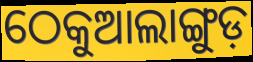
ଠେକୁଆଲାଙ୍ଗୁଡ଼